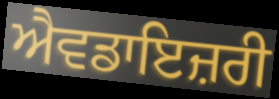
ਐਵਡਾਇਜ਼ਰੀ